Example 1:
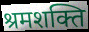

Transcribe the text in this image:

श्रमशक्ति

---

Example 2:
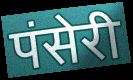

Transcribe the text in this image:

पंसेरी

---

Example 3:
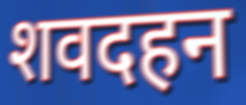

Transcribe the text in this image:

शवदहन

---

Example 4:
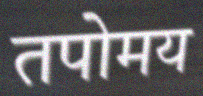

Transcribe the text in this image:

तपोमय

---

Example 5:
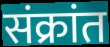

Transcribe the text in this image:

संक्रांत